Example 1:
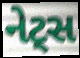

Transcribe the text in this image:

નેટ્સ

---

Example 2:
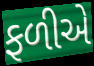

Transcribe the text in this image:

ફળીએ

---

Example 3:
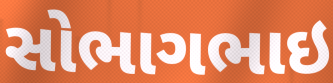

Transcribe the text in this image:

સોભાગભાઇ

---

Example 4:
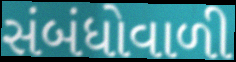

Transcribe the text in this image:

સંબંધોવાળી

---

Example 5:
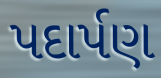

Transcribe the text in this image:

પદાર્પણ